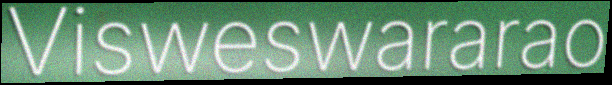
Visweswararao